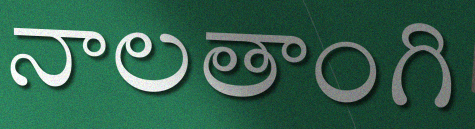
నాలతాంగి